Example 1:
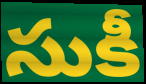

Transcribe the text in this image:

సుకీ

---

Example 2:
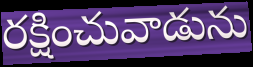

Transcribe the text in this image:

రక్షించువాడును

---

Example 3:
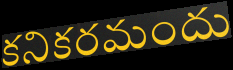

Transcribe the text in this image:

కనికరమందు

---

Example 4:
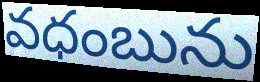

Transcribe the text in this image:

వధంబును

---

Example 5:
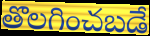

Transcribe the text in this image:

తొలగించబడే